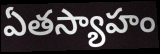
ఏతస్యాహం